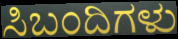
ಸಿಬಂದಿಗಳು